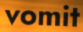
vomit